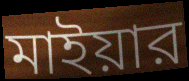
মাইয়ার